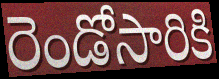
రెండోసారికి